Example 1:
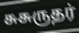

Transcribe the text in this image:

சுசுருதர்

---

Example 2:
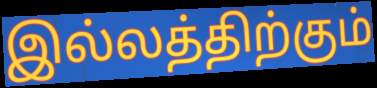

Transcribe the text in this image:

இல்லத்திற்கும்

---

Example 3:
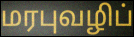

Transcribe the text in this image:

மரபுவழிப்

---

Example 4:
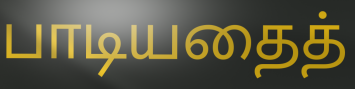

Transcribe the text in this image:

பாடியதைத்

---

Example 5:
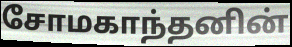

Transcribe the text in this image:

சோமகாந்தனின்